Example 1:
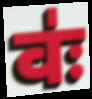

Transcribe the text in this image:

वः॑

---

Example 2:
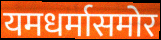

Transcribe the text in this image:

यमधर्मासमोर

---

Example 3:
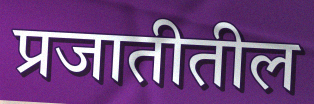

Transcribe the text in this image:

प्रजातीतील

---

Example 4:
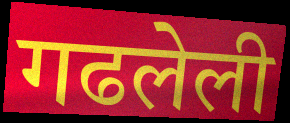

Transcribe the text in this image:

गढलेली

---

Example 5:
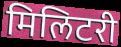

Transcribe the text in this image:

मिलिटरी